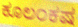
ಕೂಲಂಕಷ